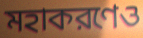
মহাকরণেও